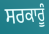
ਸਰਕਾਰੂੰ